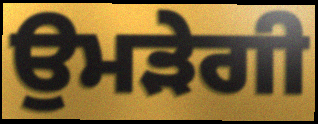
ਉਮੜੇਗੀ